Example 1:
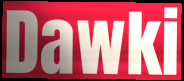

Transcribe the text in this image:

Dawki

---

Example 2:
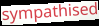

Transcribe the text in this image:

sympathised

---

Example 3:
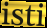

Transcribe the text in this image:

isti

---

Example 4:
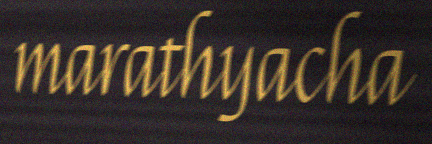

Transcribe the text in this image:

marathyacha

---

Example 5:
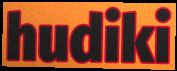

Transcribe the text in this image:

hudiki